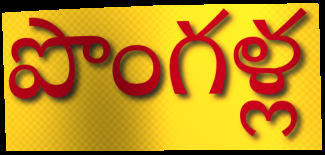
పొంగళ్ల